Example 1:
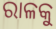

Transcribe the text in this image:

ରାଳକୁ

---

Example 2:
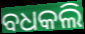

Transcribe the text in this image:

ବଧକଲି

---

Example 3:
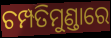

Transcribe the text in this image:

ଚମ୍ପତିମୁଣ୍ଡାରେ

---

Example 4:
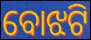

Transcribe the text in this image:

ବୋଝଟି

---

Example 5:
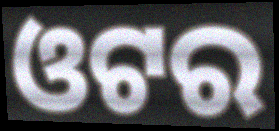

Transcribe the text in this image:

ଓଟର